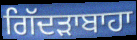
ਗਿੱਦੜਾਬਾਹਾ